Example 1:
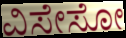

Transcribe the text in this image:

ವಿಸೇಸೋ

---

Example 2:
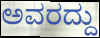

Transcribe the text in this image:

ಅವರದ್ದು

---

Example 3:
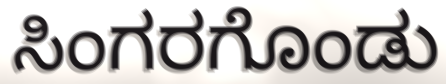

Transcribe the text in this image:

ಸಿಂಗರಗೊಂಡು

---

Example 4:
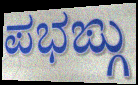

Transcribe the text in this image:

ಪಭಙ್ಗು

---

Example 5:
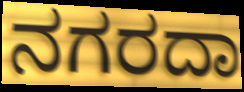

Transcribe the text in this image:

ನಗರದಾ